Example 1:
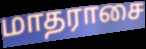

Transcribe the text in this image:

மாதராசை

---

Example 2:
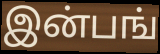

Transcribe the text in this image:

இன்பங்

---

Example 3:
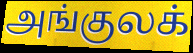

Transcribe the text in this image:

அங்குலக்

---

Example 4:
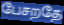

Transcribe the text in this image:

பேசறதே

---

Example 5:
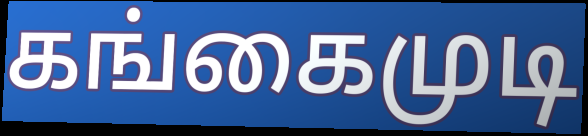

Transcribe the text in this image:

கங்கைமுடி